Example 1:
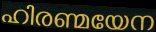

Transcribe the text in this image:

ഹിരണ്മയേന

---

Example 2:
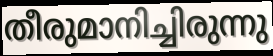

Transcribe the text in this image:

തീരുമാനിച്ചിരുന്നു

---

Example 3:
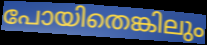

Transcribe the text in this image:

പോയിതെങ്കിലും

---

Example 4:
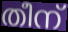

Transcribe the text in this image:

തീന്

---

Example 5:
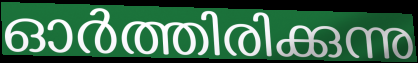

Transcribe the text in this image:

ഓർത്തിരിക്കുന്നു